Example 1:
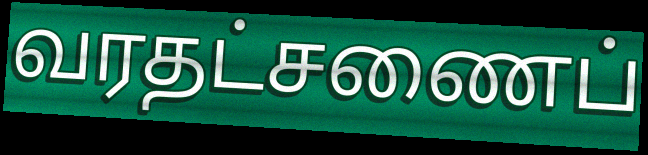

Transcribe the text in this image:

வரதட்சணைப்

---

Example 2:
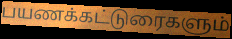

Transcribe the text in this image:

பயணக்கட்டுரைகளும்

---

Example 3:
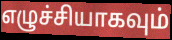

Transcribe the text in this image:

எழுச்சியாகவும்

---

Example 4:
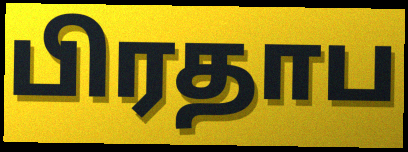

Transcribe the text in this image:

பிரதாப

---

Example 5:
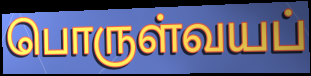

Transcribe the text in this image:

பொருள்வயப்